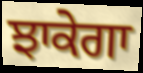
ਝਾਕੇਗਾ